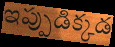
ఇప్పుడిక్కడ